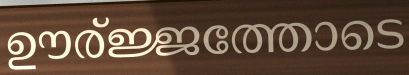
ഊര്ജ്ജത്തോടെ